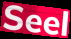
Seel